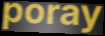
poray